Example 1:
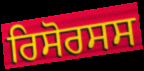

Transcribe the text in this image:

ਰਿਸੋਰਸਸ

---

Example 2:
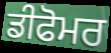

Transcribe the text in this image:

ਡੀਫੋਮਰ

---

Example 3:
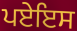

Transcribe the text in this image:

ਪਏਇਸ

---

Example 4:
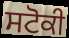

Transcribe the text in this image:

ਸਟੋਕੀ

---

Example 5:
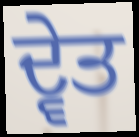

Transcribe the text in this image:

ਦ੍ਵੇਤ